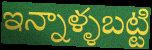
ఇన్నాళ్ళబట్టి